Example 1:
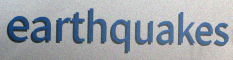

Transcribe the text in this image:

earthquakes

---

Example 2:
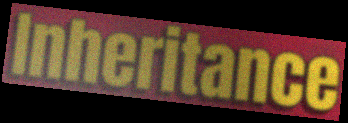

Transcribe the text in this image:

Inheritance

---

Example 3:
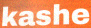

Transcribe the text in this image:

kashe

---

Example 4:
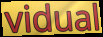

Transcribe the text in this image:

vidual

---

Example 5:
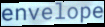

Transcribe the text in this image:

envelope